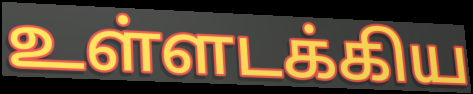
உள்ளடக்கிய